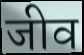
जीव